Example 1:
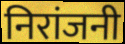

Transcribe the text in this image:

निरांजनी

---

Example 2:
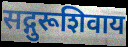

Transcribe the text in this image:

सद्गुरूशिवाय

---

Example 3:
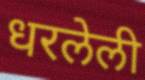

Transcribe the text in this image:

धरलेली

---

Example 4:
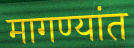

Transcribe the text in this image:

मागण्यांत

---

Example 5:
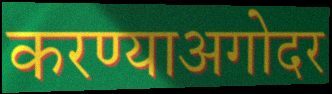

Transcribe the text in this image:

करण्याअगोदर